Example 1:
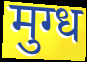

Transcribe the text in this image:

मुग्ध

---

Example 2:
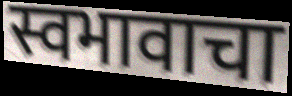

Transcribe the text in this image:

स्वभावाचा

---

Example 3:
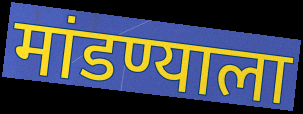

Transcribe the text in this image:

मांडण्याला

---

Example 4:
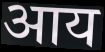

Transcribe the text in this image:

आय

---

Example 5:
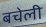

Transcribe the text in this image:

बचेली